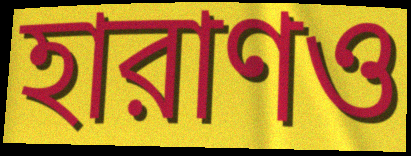
হারাণও